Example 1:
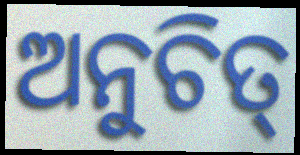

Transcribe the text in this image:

ଅନୁଚିତ୍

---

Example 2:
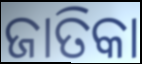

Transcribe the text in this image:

ଜାତିକା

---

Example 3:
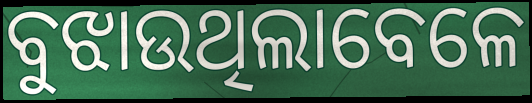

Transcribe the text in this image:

ବୁଝାଉଥିଲାବେଳେ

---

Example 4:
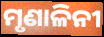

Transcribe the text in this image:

ମୃଣାଳିନୀ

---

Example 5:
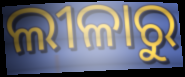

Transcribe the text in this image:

ଲୀଳାରୁ